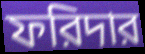
ফরিদার